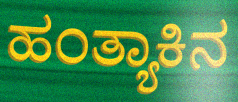
ಹಂತ್ಯಾಕಿನ